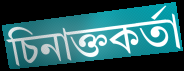
চিনাক্তকৰ্তা